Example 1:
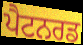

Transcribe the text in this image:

ਪੈਟਨਰਡ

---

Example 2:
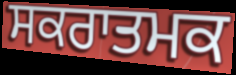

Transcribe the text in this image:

ਸਕਰਾਤਮਕ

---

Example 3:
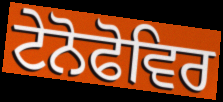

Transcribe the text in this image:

ਟੇਨੋਫੋਵਿਰ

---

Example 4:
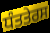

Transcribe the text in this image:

ਧੰਤਤੇਰਸ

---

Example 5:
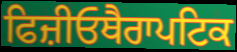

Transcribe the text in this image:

ਫਿਜ਼ੀਓਥੈਰਾਪਟਿਕ